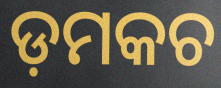
ଡ଼ମକଚ